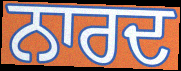
ਨਾਰਦ